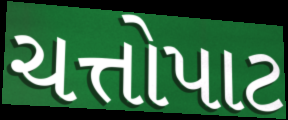
ચત્તોપાટ